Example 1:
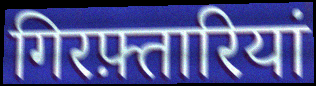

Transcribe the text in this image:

गिरफ़्तारियां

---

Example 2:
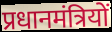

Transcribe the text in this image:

प्रधानमंत्रियों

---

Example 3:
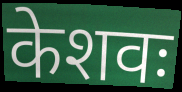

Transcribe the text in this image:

केशवः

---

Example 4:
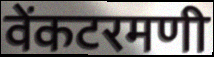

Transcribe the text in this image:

वेंकटरमणी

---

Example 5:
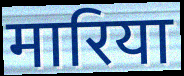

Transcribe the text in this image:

मारिया